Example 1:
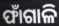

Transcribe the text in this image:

ଫାଁଗାଳି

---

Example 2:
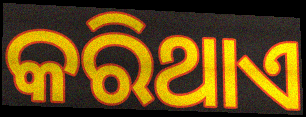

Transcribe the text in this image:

କରିଥାଏ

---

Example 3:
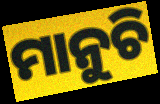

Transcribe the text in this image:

ମାନୁଚି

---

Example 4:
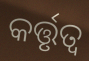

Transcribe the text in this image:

କର୍ତ୍ତୃତ୍ୱ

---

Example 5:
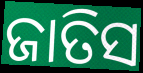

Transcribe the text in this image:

ଜାତିସ